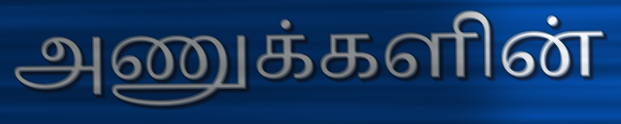
அணுக்களின்